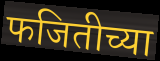
फजितीच्या